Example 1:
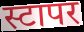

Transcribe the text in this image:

स्टापर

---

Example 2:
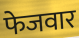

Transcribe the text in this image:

फेजवार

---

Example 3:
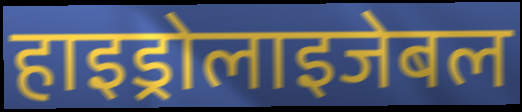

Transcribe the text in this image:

हाइड्रोलाइजेबल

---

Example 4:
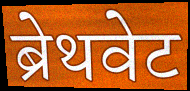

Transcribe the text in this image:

ब्रेथवेट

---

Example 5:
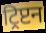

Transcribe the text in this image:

ट्रिप्टन